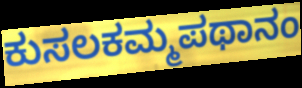
ಕುಸಲಕಮ್ಮಪಥಾನಂ